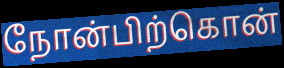
நோன்பிற்கொன்